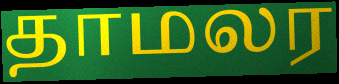
தாமலர